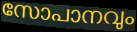
സോപാനവും